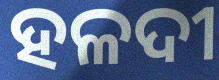
ହଳଦୀ